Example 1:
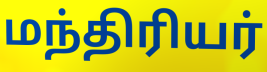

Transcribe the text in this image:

மந்திரியர்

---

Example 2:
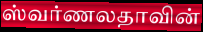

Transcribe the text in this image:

ஸ்வர்ணலதாவின்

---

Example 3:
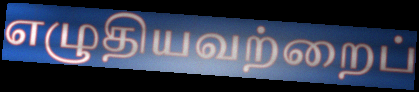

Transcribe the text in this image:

எழுதியவற்றைப்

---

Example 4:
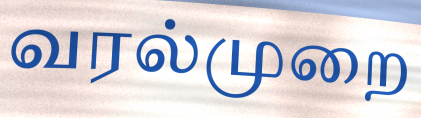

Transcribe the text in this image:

வரல்முறை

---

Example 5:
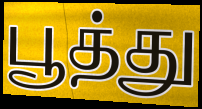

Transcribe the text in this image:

பூத்து